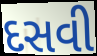
દસવી